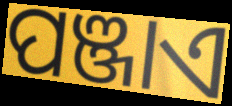
ପଞ୍ଜାଏ